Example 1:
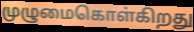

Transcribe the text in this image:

முழுமைகொள்கிறது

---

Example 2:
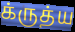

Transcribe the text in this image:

க்ருத்ய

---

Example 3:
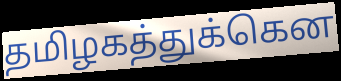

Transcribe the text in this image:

தமிழகத்துக்கென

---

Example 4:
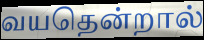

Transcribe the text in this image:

வயதென்றால்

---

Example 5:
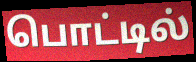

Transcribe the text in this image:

பொட்டில்